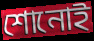
শোনোই